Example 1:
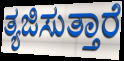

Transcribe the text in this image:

ತ್ಯಜಿಸುತ್ತಾರೆ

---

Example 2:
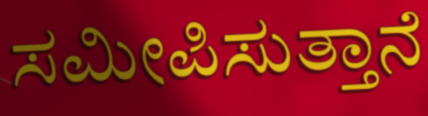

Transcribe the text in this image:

ಸಮೀಪಿಸುತ್ತಾನೆ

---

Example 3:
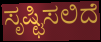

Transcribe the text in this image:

ಸೃಷ್ಟಿಸಲಿದೆ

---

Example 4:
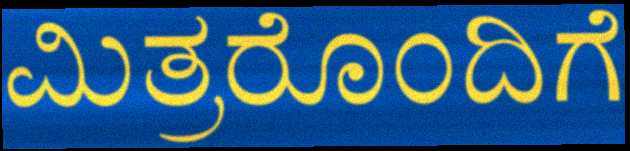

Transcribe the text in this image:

ಮಿತ್ರರೊಂದಿಗೆ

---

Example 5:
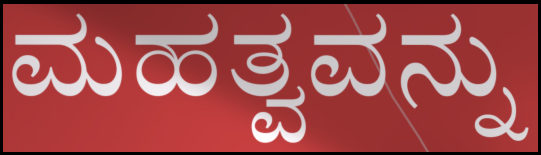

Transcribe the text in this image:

ಮಹತ್ವವನ್ನು